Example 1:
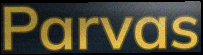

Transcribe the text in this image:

Parvas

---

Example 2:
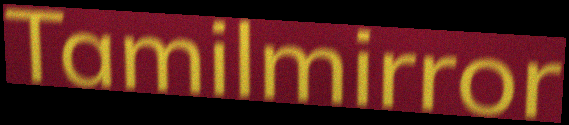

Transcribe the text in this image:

Tamilmirror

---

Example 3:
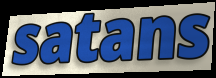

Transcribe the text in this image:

satans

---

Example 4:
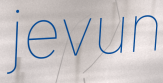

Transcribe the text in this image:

jevun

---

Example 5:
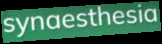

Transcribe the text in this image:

synaesthesia